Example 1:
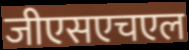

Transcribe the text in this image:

जीएसएचएल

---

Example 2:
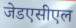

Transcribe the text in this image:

जेडएसीएल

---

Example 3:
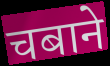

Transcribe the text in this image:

चबाने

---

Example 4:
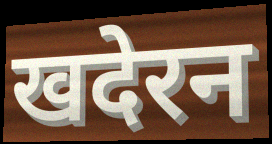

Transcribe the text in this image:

खदेरन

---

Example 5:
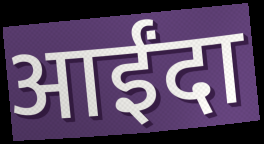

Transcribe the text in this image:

आईंदा